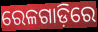
ରେଳଗାଡ଼ିରେ